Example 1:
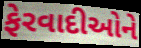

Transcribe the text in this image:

ફેરવાદીઓને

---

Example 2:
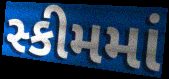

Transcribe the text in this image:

સ્કીમમાં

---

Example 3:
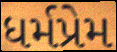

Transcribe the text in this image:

ધર્મપ્રેમ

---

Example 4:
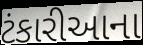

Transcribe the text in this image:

ટંકારીઆના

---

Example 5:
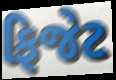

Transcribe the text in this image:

ફિજેટ